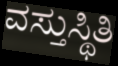
ವಸ್ತುಸ್ಥಿತಿ